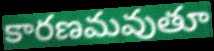
కారణమవుతూ